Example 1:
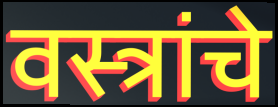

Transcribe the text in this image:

वस्त्रांचे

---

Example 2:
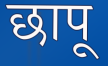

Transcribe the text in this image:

छापू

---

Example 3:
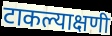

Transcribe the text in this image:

टाकल्याक्षणी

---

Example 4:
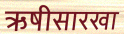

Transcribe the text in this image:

ऋषीसारखा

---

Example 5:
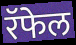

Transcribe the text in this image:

रॅफेल